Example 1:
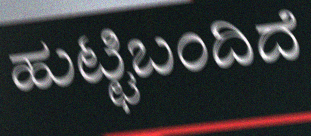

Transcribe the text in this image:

ಹುಟ್ಟಿಬಂದಿದೆ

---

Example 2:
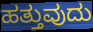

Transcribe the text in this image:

ಹತ್ತುವುದು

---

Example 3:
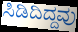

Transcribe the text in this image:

ಸಿಡಿದಿದ್ದವು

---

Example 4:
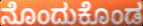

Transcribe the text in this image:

ನೊಂದುಕೊಂಡ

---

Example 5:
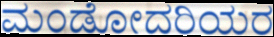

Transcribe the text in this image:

ಮಂಡೋದರಿಯರ